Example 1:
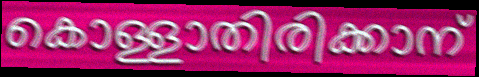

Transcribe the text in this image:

കൊള്ളാതിരിക്കാന്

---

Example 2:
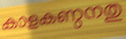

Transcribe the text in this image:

കാളകണ്ഠനതു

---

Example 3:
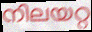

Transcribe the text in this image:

നിലയറ്റ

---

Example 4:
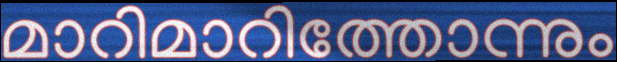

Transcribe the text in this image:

മാറിമാറിത്തോന്നും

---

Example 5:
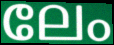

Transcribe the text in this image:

ലേം